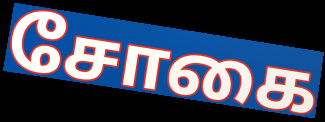
சோகை